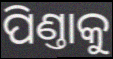
ପିଣ୍ତାକୁ